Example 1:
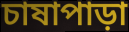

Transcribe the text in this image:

চাষাপাড়া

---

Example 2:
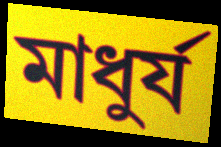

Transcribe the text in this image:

মাধুর্য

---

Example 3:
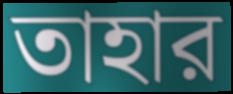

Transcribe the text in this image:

তাহার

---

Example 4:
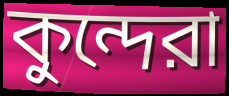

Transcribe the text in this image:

কুন্দেরা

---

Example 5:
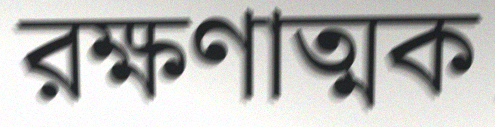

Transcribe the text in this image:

রক্ষণাত্মক